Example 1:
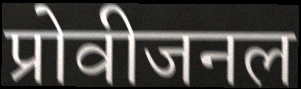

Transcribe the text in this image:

प्रोवीजनल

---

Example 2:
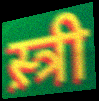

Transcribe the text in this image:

स़्त्री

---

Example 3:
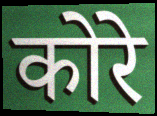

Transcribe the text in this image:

कोरे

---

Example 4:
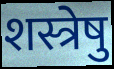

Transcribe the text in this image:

शस्त्रेषु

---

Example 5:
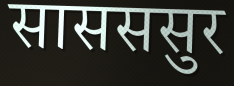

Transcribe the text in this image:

सासससुर